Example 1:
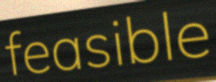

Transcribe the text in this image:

feasible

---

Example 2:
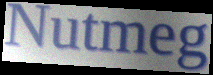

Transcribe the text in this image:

Nutmeg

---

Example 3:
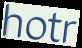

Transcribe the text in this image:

hotr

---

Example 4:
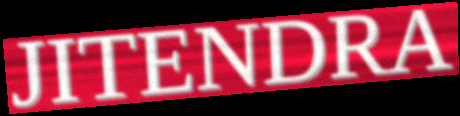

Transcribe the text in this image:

JITENDRA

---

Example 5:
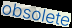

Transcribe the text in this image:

obsolete